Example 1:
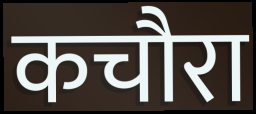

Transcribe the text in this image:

कचौरा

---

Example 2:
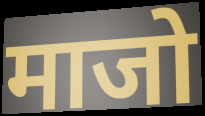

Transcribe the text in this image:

माजो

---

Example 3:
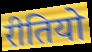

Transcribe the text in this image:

रीतियो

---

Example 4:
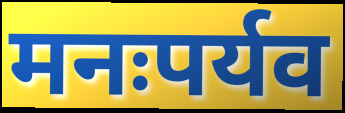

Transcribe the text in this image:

मनःपर्यव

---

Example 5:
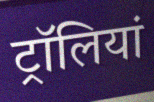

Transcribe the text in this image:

ट्रॉलियां